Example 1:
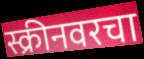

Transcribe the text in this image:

स्क्रीनवरचा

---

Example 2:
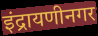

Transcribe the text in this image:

इंद्रायणीनगर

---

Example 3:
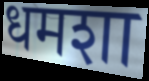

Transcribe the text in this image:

धमशा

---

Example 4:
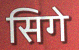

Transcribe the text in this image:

सिगे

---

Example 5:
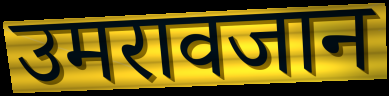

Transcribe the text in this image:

उमरावजान